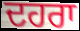
ਦਹਰਾ